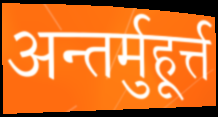
अन्तर्मुहूर्त्त